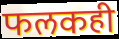
फलकही